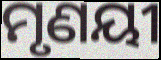
ମୃଣୟୀ